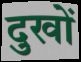
दुखों